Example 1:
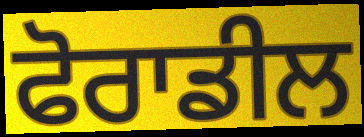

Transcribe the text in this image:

ਫੋਰਾਡੀਲ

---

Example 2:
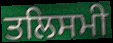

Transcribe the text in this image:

ਤਲਿਸਮੀ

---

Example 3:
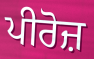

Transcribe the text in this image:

ਪੀਰੋਜ਼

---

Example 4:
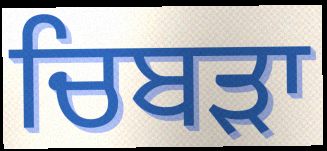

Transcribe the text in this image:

ਚਿਬੜਾ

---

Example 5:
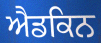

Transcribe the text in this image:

ਐਡਕਿਨ